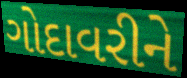
ગોદાવરીને